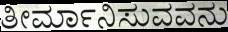
ತೀರ್ಮಾನಿಸುವವನು